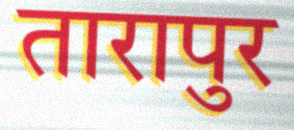
तारापुर